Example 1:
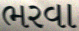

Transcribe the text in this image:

ભરવા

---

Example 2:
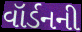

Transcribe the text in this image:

વૉર્ડનની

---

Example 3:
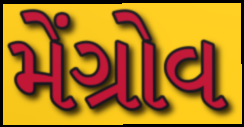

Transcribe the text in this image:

મેંગ્રોવ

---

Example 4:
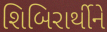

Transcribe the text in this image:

શિબિરાર્થીને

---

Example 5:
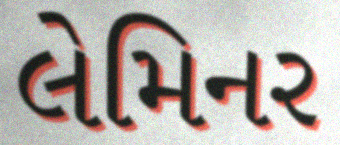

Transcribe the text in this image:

લેમિનર